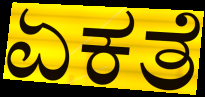
ಏಕತೆ